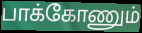
பாக்கோணும்